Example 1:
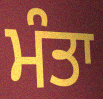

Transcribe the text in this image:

ਮੰਤਾ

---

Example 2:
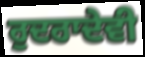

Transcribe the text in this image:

ਰੁਦਰਾਦੇਵੀ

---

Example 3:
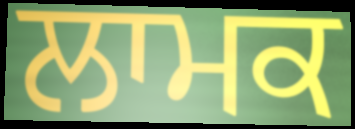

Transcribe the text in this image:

ਲਾਮਕ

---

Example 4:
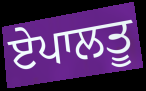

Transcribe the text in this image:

ਏਪਾਲਤੂ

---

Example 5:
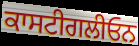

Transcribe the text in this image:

ਕਾਸਟੀਗਲੀਓਨ